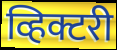
व्हिक्टरी